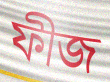
ফীজ